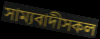
সাম্যবাদীসকল